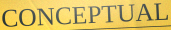
CONCEPTUAL